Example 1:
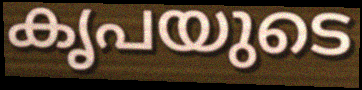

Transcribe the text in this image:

കൃപയുടെ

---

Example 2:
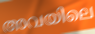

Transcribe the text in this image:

അവയിലെ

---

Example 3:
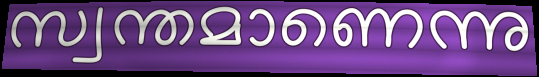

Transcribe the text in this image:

സ്വന്തമാണെന്നു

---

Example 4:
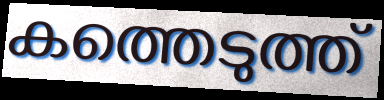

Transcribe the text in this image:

കത്തെടുത്ത്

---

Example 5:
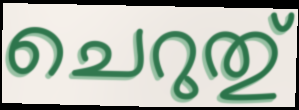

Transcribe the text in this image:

ചെറുതു്